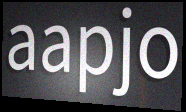
aapjo